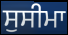
ਸੁਸੀਮਾ